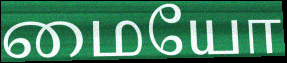
மையோ